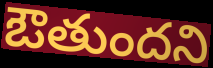
ఔతుందని